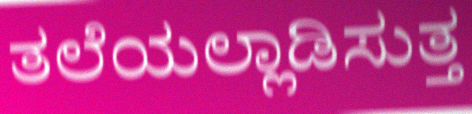
ತಲೆಯಲ್ಲಾಡಿಸುತ್ತ